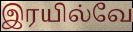
இரயில்வே